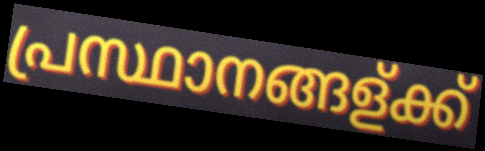
പ്രസ്ഥാനങ്ങള്ക്ക്